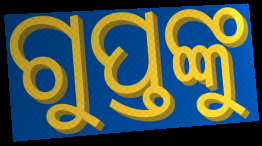
ଗୁପ୍ତଙ୍କୁ